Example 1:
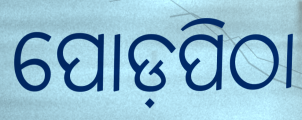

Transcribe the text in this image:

ପୋଡ଼ପିଠା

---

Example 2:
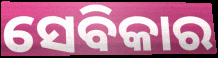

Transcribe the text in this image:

ସେବିକାର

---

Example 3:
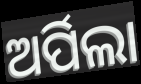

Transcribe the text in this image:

ଅର୍ପିଲା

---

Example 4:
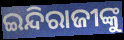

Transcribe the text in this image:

ଇନ୍ଦିରାଜୀଙ୍କୁ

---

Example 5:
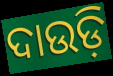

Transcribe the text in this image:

ଦାଉଡ଼ି